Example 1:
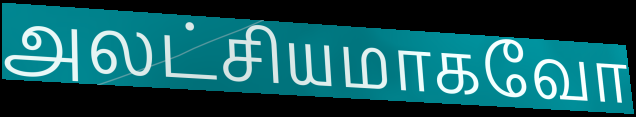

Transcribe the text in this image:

அலட்சியமாகவோ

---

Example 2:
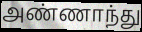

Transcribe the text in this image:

அண்ணாந்து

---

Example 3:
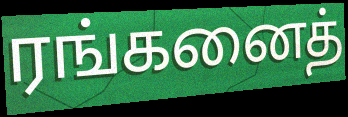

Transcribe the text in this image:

ரங்கனைத்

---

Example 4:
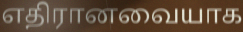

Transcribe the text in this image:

எதிரானவையாக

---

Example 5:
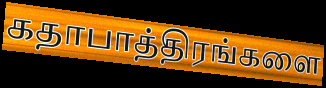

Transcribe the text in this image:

கதாபாத்திரங்களை